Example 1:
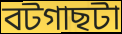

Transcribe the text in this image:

বটগাছটা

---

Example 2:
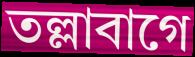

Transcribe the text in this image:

তল্লাবাগে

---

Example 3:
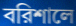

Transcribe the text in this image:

বরিশালে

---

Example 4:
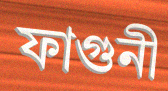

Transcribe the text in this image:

ফাগুনী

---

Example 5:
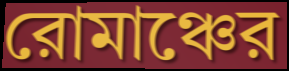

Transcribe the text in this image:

রোমাঞ্চের